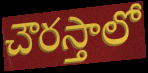
చౌరస్తాలో